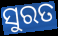
ସୁରତ